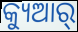
କ୍ୟୁଆର୍